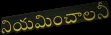
నియమించాలనీ